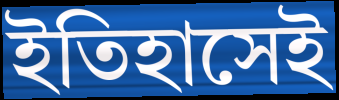
ইতিহাসেই